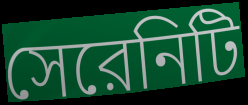
সেরেনিটি